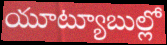
యూట్యూబుల్లో